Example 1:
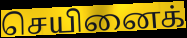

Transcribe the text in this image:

செயினைக்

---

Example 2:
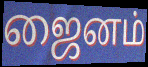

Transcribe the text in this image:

ஜைனம்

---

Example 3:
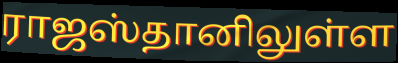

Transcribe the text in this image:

ராஜஸ்தானிலுள்ள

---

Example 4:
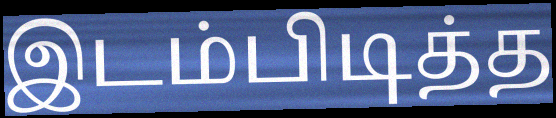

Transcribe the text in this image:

இடம்பிடித்த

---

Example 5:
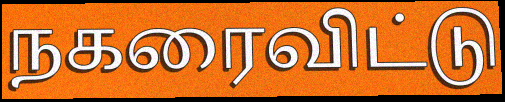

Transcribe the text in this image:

நகரைவிட்டு